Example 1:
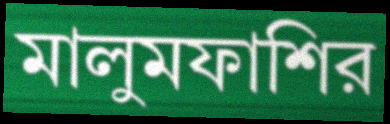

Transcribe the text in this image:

মালুমফাশির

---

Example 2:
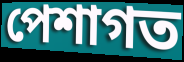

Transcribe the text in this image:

পেশাগত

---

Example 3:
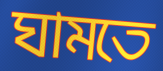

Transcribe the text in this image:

ঘামতে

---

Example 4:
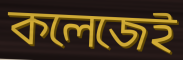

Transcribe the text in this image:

কলেজেই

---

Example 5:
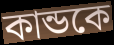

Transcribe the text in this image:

কান্ডকে